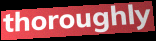
thoroughly